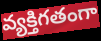
వ్యక్తిగతంగా